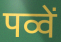
पव्वें